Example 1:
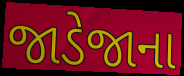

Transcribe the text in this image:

જાડેજાના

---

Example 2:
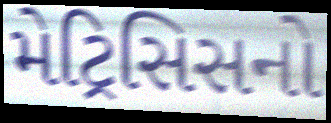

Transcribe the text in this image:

મેટ્રિસિસનો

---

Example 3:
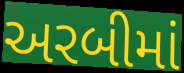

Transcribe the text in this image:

અરબીમાં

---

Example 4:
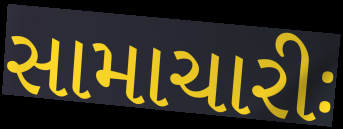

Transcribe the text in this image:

સામાચારીઃ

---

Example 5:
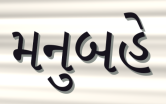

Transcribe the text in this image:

મનુબહે